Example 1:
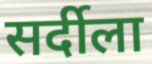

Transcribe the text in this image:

सर्दीला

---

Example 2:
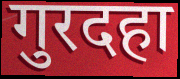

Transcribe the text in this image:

गुरदहा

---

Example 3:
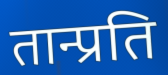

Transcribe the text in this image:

तान्प्रति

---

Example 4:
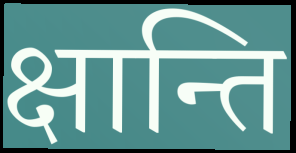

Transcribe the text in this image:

क्षान्ति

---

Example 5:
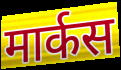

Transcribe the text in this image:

मार्कस